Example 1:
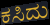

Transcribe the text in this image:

ಕಸಿದು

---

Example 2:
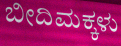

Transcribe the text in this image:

ಬೀದಿಮಕ್ಕಳು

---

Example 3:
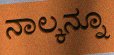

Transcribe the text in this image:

ನಾಲ್ಕನ್ನೂ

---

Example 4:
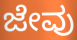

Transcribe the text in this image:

ಜೇವು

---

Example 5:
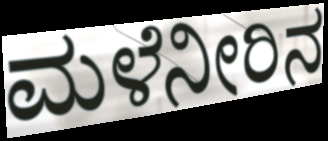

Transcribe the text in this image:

ಮಳೆನೀರಿನ